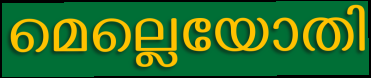
മെല്ലെയോതി